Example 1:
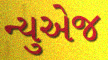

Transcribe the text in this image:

ન્યુએજ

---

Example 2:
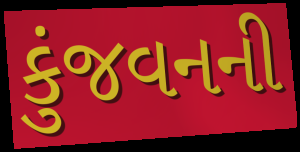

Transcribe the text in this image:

કુંજવનની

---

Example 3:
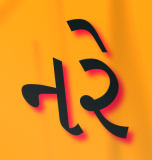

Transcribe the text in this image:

નરે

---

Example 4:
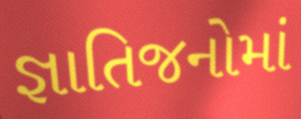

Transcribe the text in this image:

જ્ઞાતિજનોમાં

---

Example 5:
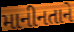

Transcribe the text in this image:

માનીનતાને